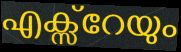
എക്സ്റേയും